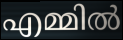
എമ്മിൽ